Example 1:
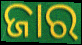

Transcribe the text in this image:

ଜାର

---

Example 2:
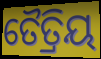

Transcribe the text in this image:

ତୈତ୍ରିୟ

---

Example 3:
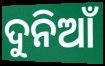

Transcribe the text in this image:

ଦୁନିଆଁ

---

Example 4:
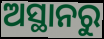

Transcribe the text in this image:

ଅସ୍ଥାନରୁ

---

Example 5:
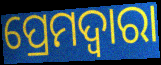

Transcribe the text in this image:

ପ୍ରେମଦ୍ୱାରା